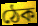
ঠেক